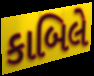
કાબિલે